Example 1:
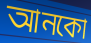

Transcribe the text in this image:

আনকো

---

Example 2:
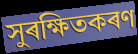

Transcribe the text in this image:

সুৰক্ষিতকৰণ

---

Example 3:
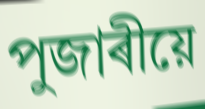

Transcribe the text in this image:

পুজাৰীয়ে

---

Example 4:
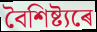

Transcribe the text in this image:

বৈশিষ্ট্যৰে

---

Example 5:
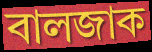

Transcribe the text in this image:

বালজাক